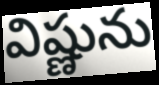
విష్ణును